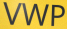
VWP